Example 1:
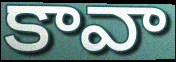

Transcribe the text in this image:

కావా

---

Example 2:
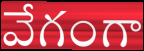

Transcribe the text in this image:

వేగంగా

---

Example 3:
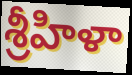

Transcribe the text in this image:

శ్రీహిళా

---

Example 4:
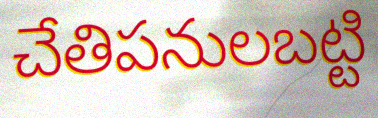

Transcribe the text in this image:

చేతిపనులబట్టి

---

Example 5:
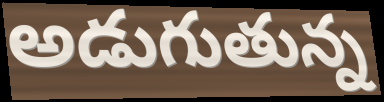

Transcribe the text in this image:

అడుగుతున్న